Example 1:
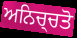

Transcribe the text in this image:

ਅਨਿਚ੍ਚਤੋ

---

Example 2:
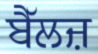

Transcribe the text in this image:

ਬੈੱਲਜ਼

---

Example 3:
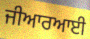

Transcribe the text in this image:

ਜੀਆਰਆਈ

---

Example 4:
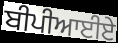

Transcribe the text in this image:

ਬੀਪੀਆਈਏ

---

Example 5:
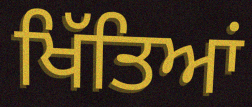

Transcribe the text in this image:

ਖਿੱਤਿਆਂ